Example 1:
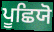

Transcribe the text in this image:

ਪੂਛਿਯੋ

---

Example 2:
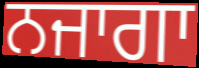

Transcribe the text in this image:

ਨਜਾਗਾ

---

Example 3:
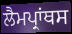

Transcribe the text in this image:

ਲੈਮਪ੍ਰਾਂਥਸ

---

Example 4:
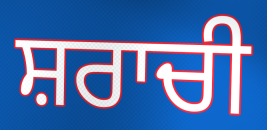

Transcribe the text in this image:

ਸ਼ਰਾਚੀ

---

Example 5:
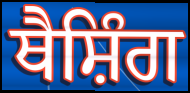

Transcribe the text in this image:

ਥੈਸ਼ਿੰਗ